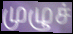
முழுச்